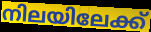
നിലയിലേക്ക്